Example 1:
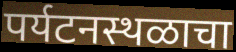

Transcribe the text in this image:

पर्यटनस्थळाचा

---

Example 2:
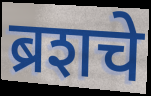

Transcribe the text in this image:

ब्रशचे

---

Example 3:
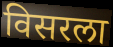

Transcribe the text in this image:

विसरला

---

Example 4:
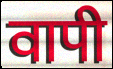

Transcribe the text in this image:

वापी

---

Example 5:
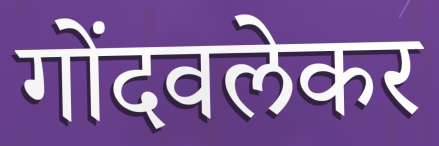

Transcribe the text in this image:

गोंदवलेकर